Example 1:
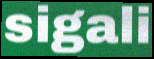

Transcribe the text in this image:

sigali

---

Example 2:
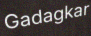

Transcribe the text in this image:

Gadagkar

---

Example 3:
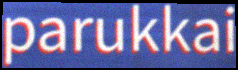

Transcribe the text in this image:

parukkai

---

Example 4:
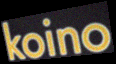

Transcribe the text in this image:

koino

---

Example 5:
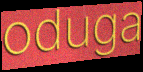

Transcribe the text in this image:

oduga